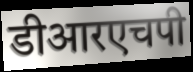
डीआरएचपी